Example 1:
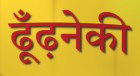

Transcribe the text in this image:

ढूँढ़नेकी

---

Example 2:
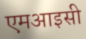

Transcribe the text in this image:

एमआइसी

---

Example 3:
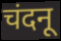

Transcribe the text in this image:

चंदनू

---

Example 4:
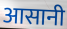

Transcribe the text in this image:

आसानी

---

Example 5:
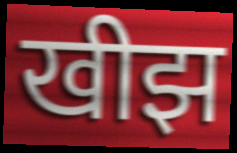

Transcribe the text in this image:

खीझ